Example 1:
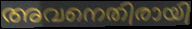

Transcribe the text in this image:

അവനെതിരായി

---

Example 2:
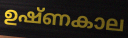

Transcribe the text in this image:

ഉഷ്ണകാല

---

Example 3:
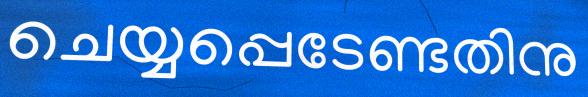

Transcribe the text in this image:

ചെയ്യപ്പെടേണ്ടതിനു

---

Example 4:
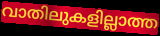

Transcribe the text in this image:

വാതിലുകളില്ലാത്ത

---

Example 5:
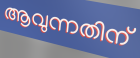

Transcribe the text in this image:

ആവുന്നതിന്